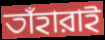
তাঁহারাই